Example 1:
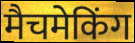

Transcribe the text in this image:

मैचमेकिंग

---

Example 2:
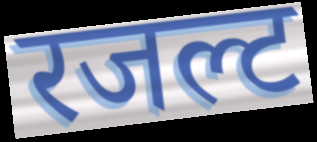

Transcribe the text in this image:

रजल्ट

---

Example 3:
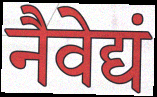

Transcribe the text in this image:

नैवेद्यं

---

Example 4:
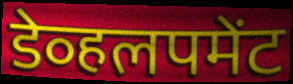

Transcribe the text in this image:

डेव्‍हलपमेंट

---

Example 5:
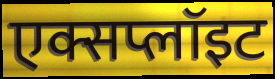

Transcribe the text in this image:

एक्सप्लॉइट